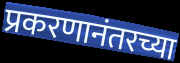
प्रकरणानंतरच्या